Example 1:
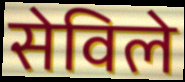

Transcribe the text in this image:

सेविले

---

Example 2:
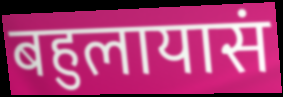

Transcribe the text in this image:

बहुलायासं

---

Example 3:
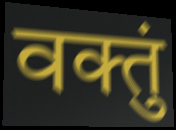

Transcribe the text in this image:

वक्तुं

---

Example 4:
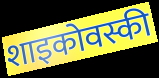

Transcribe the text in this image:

शाइकोवस्की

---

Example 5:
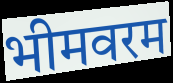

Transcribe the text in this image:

भीमवरम